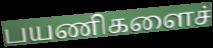
பயணிகளைச்